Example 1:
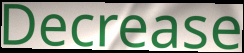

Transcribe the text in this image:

Decrease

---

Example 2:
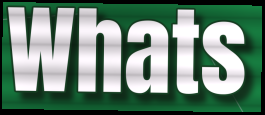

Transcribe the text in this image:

Whats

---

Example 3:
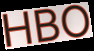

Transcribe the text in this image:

HBO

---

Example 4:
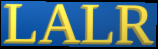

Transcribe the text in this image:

LALR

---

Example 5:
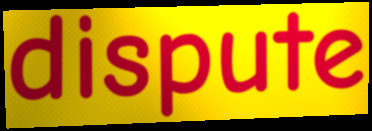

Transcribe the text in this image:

dispute